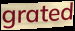
grated